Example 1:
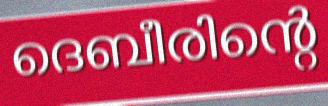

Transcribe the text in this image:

ദെബീരിന്റെ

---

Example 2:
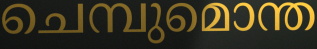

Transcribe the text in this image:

ചെമ്പുമൊന്ത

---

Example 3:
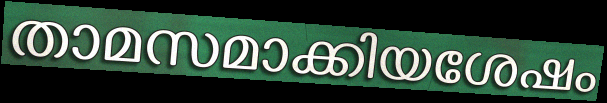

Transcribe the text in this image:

താമസമാക്കിയശേഷം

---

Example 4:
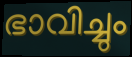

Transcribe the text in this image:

ഭാവിച്ചും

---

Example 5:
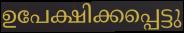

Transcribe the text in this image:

ഉപേക്ഷിക്കപ്പെട്ടു